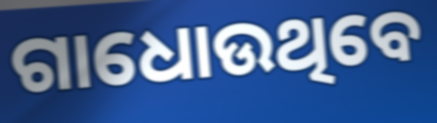
ଗାଧୋଉଥିବେ